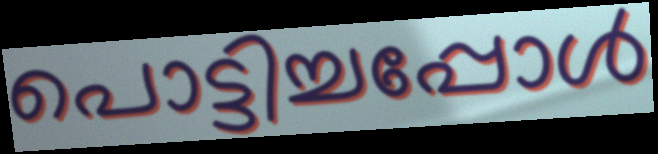
പൊട്ടിച്ചപ്പോൾ